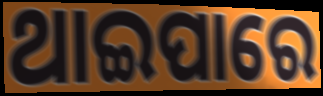
ଥାଇପାରେ